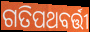
ଗତିପଥବର୍ତ୍ତୀ